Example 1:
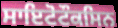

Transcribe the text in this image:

ਸਾਇਟੋਟੌਕਸਿਨ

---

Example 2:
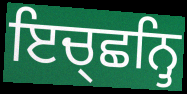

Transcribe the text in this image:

ਇਚ੍ਛਨ੍ਤਿ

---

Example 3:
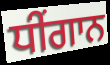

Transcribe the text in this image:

ਧੀਂਗਾਨ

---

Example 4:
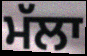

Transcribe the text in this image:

ਮੱਲਾ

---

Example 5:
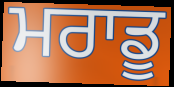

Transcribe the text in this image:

ਮਰਾਡੂ